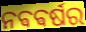
ନଵଵର୍ଷର